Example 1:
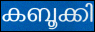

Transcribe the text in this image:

കബൂക്കി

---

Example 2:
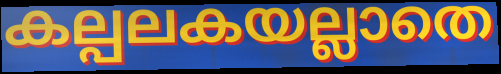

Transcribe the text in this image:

കല്പലകയല്ലാതെ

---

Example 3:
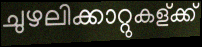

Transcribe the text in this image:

ചുഴലിക്കാറ്റുകള്ക്ക്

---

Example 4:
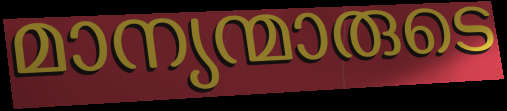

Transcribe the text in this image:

മാന്യന്മാരുടെ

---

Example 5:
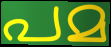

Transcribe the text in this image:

പമ